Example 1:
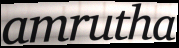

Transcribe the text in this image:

amrutha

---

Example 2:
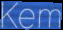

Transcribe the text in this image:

Kem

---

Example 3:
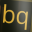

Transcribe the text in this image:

bq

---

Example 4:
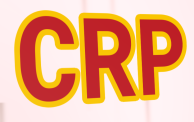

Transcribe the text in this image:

CRP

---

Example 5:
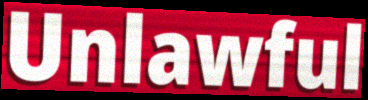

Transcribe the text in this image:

Unlawful